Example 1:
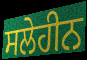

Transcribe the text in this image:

ਸਲੇਹੀਨ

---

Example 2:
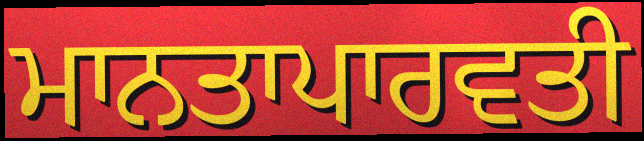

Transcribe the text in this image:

ਮਾਨਤਾਪਾਰਵਤੀ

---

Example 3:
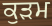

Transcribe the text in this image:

ਕੁੜਮ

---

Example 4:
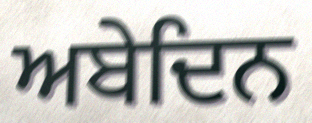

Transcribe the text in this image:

ਅਬੇਦਿਨ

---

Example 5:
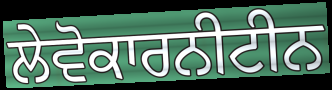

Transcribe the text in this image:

ਲੇਵੋਕਾਰਨੀਟੀਨ